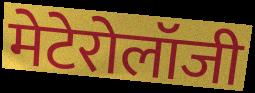
मेटेरोलॉजी